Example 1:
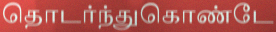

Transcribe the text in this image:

தொடர்ந்துகொண்டே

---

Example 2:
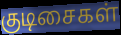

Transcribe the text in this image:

குடிசைகள்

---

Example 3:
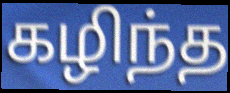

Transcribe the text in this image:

கழிந்த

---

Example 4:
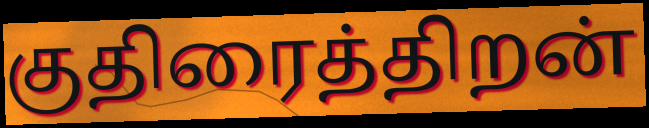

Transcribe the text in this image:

குதிரைத்திறன்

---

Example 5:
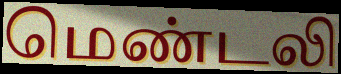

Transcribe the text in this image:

மெண்டலி